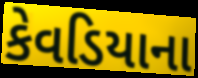
કેવડિયાના